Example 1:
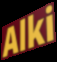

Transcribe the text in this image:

Alki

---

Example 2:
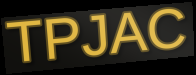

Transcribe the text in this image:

TPJAC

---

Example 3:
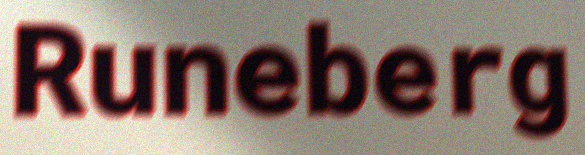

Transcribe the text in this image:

Runeberg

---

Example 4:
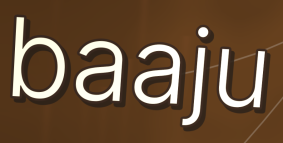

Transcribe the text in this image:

baaju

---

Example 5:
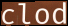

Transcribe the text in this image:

clod